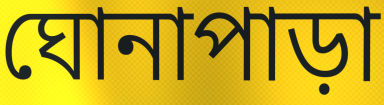
ঘোনাপাড়া